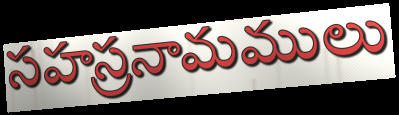
సహస్రనామములు